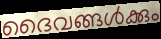
ദൈവങ്ങൾക്കും